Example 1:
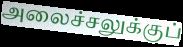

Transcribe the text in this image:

அலைச்சலுக்குப்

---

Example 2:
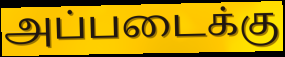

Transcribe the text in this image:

அப்படைக்கு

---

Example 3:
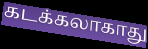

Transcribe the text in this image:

கடக்கலாகாது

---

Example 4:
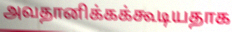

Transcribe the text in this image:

அவதானிக்கக்கூடியதாக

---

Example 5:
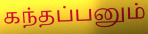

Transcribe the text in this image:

கந்தப்பனும்